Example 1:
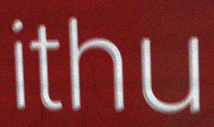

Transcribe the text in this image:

ithu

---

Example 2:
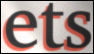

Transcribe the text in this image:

ets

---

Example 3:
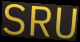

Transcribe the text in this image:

SRU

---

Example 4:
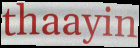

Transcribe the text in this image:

thaayin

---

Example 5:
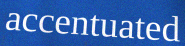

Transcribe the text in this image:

accentuated